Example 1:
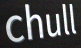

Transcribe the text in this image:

chull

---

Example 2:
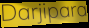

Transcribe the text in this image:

Darjipara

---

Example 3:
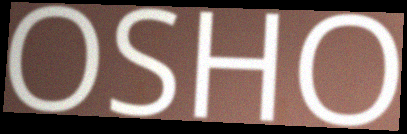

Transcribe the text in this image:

OSHO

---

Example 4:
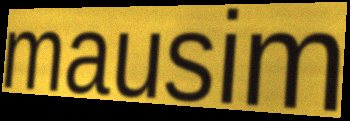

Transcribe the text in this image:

mausim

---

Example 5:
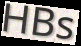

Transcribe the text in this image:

HBs